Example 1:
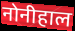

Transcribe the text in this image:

नोनीहाल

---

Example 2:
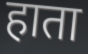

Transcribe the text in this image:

हाता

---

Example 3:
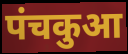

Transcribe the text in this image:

पंचकुआ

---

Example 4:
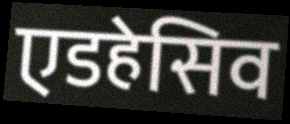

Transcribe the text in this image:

एडहेसिव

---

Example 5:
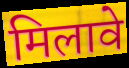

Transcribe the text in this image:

मिलावे